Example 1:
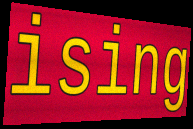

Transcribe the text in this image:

ising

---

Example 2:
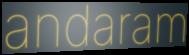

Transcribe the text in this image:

andaram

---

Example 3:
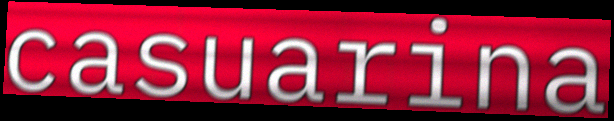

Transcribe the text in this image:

casuarina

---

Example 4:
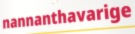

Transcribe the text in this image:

nannanthavarige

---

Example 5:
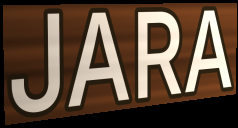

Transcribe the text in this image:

JARA